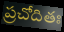
ప్రచోదితః